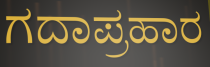
ಗದಾಪ್ರಹಾರ